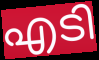
എടി